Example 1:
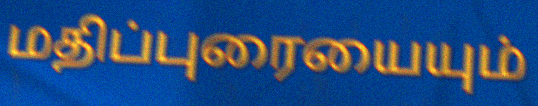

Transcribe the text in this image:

மதிப்புரையையும்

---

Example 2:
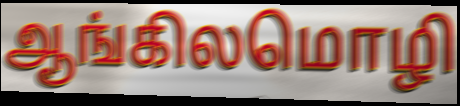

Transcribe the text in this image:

ஆங்கிலமொழி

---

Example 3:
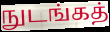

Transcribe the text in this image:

நுடங்கத்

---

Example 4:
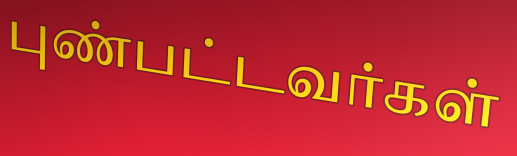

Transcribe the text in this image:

புண்பட்டவர்கள்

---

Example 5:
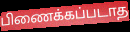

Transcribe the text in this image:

பிணைக்கப்படாத